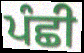
ਪੰਛੀ